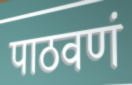
पाठवणं